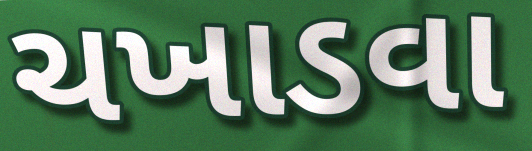
ચખાડવા